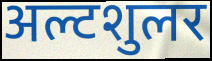
अल्टशुलर